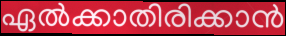
ഏൽക്കാതിരിക്കാൻ